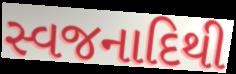
સ્વજનાદિથી